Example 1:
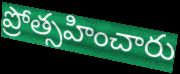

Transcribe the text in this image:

ప్రోత్సహించారు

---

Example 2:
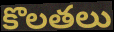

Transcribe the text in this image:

కొలతలు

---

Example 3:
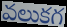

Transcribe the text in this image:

వలుకగ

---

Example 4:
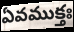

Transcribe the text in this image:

ఏవముక్తః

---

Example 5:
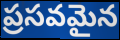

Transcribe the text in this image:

ప్రసవమైన